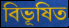
বিভূষিত